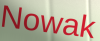
Nowak